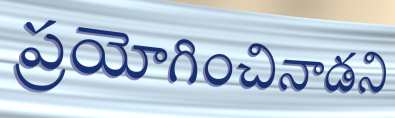
ప్రయోగించినాడని